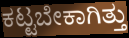
ಕಟ್ಟಬೇಕಾಗಿತ್ತು